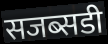
सजब्सडी